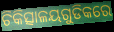
ଚିକିତ୍ସାଳୟଗୁଡିକରେ